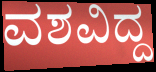
ವಶವಿದ್ದ